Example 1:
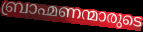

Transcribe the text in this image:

ബ്രാഹ്മണന്മാരുടെ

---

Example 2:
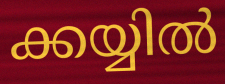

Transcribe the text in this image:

ക്കയ്യിൽ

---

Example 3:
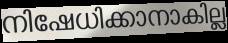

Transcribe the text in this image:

നിഷേധിക്കാനാകില്ല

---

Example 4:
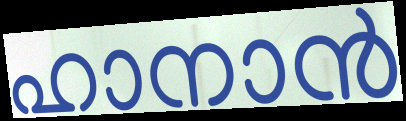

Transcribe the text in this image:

ഹാനാൻ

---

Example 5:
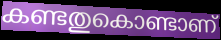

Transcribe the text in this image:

കണ്ടതുകൊണ്ടാണ്